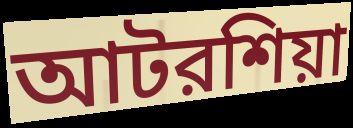
আটরশিয়া